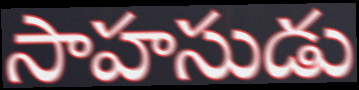
సాహసుడు